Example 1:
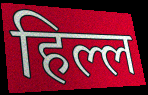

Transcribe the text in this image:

हिल्ल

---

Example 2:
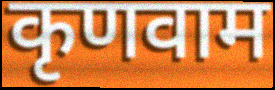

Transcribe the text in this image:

कृणवाम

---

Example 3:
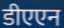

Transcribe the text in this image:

डीएएन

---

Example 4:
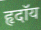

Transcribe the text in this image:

हृदॉय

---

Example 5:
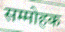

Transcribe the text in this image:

सम्मोहक